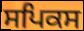
ਸਪਿਕਸ